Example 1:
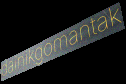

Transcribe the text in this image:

dainikgomantak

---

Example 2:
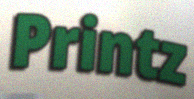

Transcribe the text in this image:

Printz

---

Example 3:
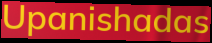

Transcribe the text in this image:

Upanishadas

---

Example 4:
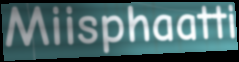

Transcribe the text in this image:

Miisphaatti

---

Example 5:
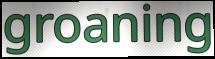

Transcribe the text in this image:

groaning